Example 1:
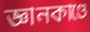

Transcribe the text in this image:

জ্ঞানকাণ্ডে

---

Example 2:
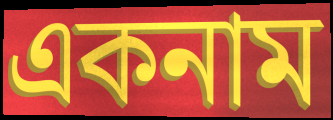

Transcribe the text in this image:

একনাম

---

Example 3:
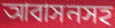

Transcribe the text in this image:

আবাসনসহ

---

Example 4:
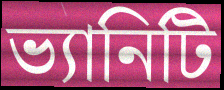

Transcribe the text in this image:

ভ্যানিটি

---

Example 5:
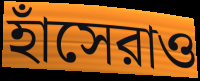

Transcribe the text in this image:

হাঁসেরাও